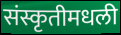
संस्कृतीमधली